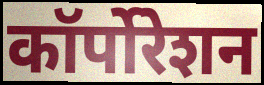
कॉर्पोरेशन